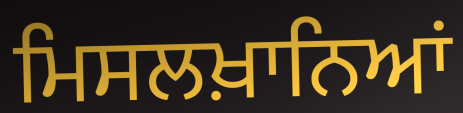
ਮਿਸਲਖ਼ਾਨਿਆਂ